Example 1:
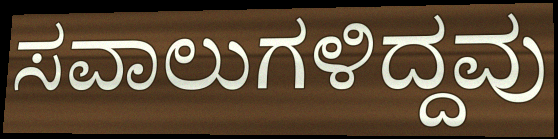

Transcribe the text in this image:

ಸವಾಲುಗಳಿದ್ದವು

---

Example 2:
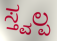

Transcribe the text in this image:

ಸ್ತ್ವಲ್ಪ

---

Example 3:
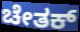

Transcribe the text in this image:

ಚೇತಕ್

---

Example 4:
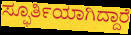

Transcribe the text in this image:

ಸ್ಫೂರ್ತಿಯಾಗಿದ್ದಾರೆ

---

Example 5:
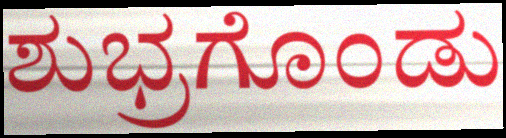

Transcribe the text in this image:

ಶುಭ್ರಗೊಂಡು